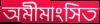
অমীমাংসিত